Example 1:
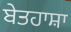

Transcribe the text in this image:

ਬੇਤਹਾਸ਼ਾ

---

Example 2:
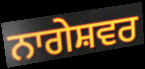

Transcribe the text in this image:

ਨਾਗੇਸ਼ਵਰ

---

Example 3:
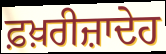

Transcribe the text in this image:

ਫ਼ਖ਼ਰੀਜ਼ਾਦੇਹ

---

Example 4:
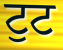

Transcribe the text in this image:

ਟੁਟ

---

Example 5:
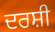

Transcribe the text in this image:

ਦਰਸ਼ੀ